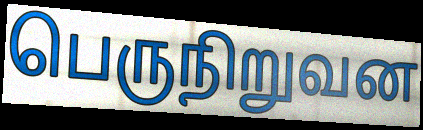
பெருநிறுவன